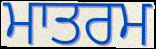
ਮਾਤਰਮ